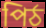
পিঠ